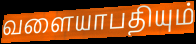
வளையாபதியும்